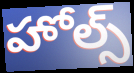
హోల్స్